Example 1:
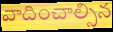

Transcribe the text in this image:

వాదించాల్సిన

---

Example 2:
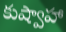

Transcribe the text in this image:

కుష్వాహా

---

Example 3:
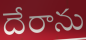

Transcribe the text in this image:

దేరాను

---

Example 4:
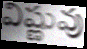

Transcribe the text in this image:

విష్ణువు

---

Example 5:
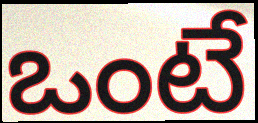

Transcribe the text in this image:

ఒంటే